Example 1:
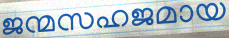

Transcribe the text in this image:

ജന്മസഹജമായ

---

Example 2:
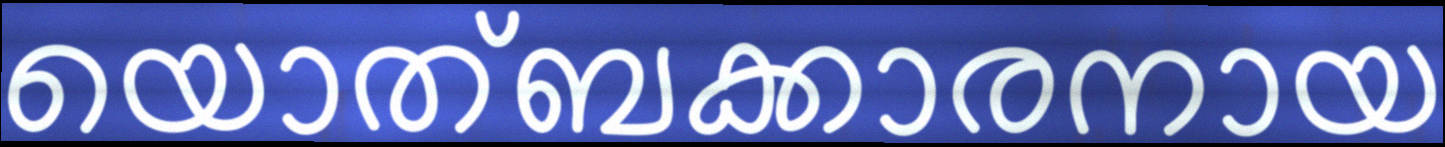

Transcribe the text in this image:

യൊത്ബക്കാരനായ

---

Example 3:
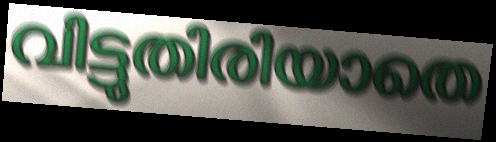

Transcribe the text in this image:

വിട്ടുതിരിയാതെ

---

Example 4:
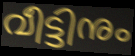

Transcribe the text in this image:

വീട്ടിനും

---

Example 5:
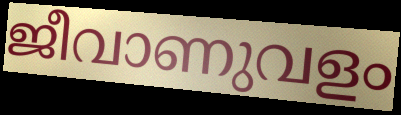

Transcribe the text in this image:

ജീവാണുവളം